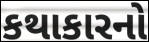
કથાકારનો